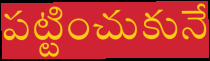
పట్టించుకునే